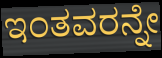
ಇಂತವರನ್ನೇ